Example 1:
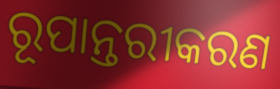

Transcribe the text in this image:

ରୂପାନ୍ତରୀକରଣ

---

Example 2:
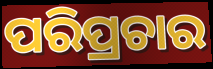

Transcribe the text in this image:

ପରିପ୍ରଚାର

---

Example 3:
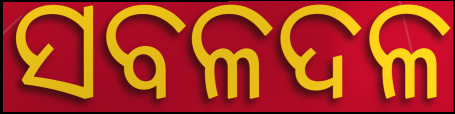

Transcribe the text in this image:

ସବଳଦଳ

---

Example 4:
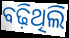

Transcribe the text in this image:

ବଢ଼ିଥିଲି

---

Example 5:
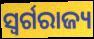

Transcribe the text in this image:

ସ୍ୱର୍ଗରାଜ୍ୟ